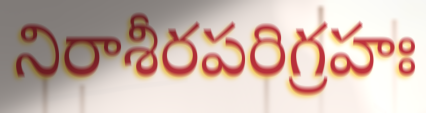
నిరాశీరపరిగ్రహః